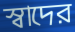
স্বাদের